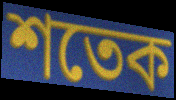
শতেক